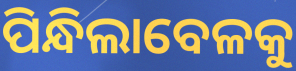
ପିନ୍ଧିଲାବେଳକୁ